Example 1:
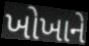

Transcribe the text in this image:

ખોખાને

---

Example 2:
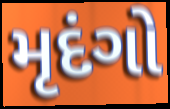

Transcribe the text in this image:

મૃદંગો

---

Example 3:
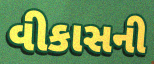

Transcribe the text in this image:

વીકાસની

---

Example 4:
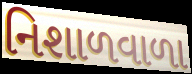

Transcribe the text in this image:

નિશાળવાળા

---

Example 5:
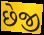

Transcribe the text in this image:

છેજી